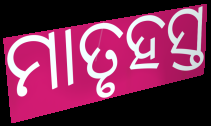
ମାତୃହସ୍ତ